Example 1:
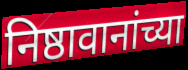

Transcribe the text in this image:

निष्ठावानांच्या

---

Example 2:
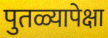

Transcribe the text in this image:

पुतळ्यापेक्षा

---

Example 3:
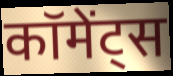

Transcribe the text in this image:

कॉमेंट्स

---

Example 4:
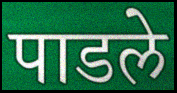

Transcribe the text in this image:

पाडले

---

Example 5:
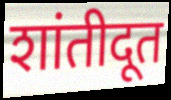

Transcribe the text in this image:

शांतीदूत